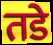
तडे